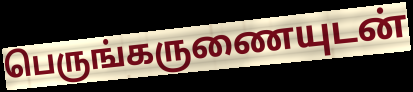
பெருங்கருணையுடன்